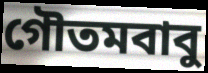
গৌতমবাবু